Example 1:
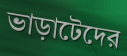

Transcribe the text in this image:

ভাড়াটেদের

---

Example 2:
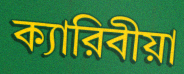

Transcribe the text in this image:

ক্যারিবীয়া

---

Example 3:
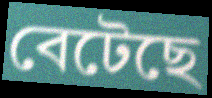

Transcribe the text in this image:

বেটেছে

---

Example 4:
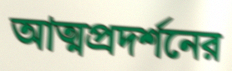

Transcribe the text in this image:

আত্মপ্রদর্শনের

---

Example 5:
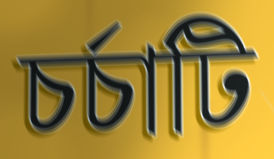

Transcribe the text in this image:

চর্চাটি